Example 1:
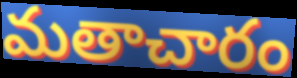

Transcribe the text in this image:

మతాచారం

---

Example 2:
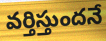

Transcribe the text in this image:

వర్తిస్తుందనే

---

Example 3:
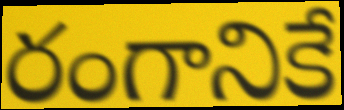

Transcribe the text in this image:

రంగానికే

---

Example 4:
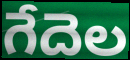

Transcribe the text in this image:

గేదెల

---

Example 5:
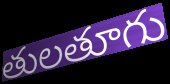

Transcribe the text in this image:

తులతూగు